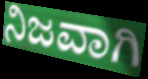
ನಿಜವಾಗಿ